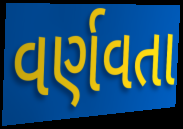
વર્ણવતા